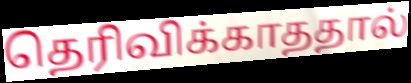
தெரிவிக்காததால்